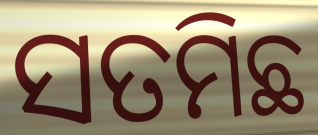
ସତମିଛ